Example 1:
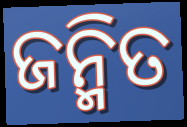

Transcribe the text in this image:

ଜନ୍ମିତ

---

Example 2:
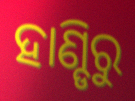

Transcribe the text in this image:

ହାଣ୍ଡିରୁ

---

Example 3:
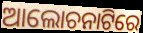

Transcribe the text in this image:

ଆଲୋଚନାଟିରେ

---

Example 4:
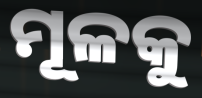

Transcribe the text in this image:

ମୂଳକୁ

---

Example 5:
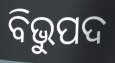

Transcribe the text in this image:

ବିଭୁପଦ